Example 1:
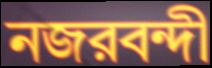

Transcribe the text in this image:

নজরবন্দী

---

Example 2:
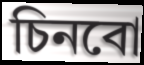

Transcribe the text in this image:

চিনবো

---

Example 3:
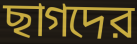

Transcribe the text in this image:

ছাগদের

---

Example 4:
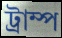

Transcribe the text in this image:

ট্রাম্প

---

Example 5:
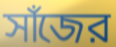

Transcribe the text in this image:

সাঁজের